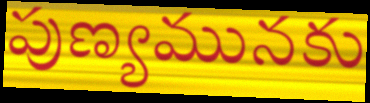
పుణ్యమునకు